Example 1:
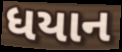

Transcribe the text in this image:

ધયાન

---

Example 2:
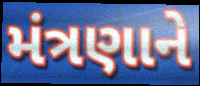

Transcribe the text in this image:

મંત્રણાને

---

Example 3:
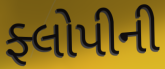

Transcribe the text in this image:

ફ્લોપીની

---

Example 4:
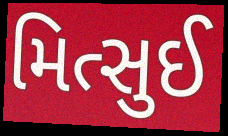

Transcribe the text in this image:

મિત્સુઈ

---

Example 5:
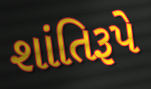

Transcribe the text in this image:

શાંતિરૂપે